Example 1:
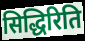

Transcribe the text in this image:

सिद्धिरिति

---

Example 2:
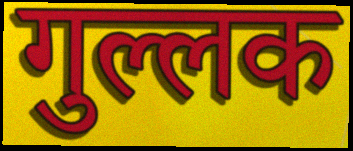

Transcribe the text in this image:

गुल्लक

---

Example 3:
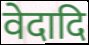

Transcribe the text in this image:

वेदादि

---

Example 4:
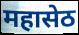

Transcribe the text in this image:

महासेठ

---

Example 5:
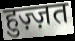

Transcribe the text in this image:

हुज़्ज़त